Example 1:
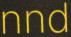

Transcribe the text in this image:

nnd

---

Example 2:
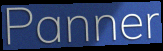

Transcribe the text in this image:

Panner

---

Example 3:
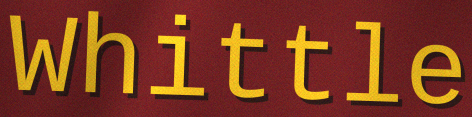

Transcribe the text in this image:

Whittle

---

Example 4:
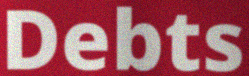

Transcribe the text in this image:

Debts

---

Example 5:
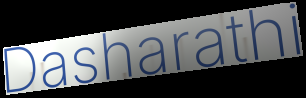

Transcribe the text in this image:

Dasharathi